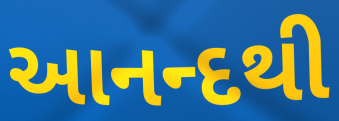
આનન્દથી